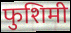
फुशिमी